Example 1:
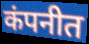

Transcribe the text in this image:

कंपनीत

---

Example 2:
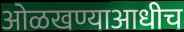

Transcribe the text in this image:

ओळखण्याआधीच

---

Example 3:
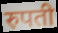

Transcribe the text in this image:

रुपती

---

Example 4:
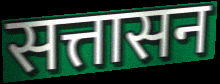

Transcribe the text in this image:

सत्तासन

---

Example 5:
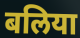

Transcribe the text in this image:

बलिया